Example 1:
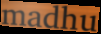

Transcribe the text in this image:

madhu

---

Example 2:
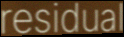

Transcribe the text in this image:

residual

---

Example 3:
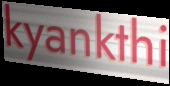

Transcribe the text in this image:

kyankthi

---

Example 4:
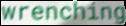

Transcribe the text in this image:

wrenching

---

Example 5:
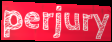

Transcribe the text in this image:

perjury